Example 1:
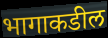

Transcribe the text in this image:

भागाकडील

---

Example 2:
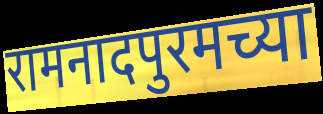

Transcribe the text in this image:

रामनादपुरमच्या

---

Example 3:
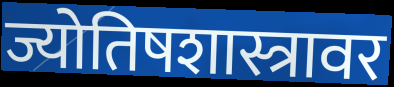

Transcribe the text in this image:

ज्योतिषशास्त्रावर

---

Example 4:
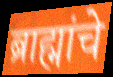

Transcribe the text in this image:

ब्राह्मांचे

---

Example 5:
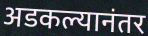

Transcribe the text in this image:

अडकल्यानंतर